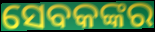
ସେବକଙ୍କର